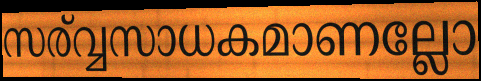
സര്വ്വസാധകമാണല്ലോ